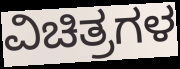
ವಿಚಿತ್ರಗಳ